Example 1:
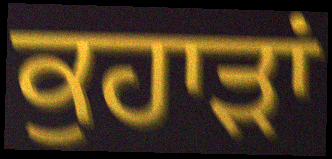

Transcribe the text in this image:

ਕੁਹਾੜਾਂ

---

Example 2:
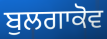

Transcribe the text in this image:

ਬੁਲਗਾਕੋਵ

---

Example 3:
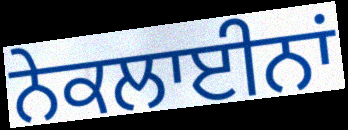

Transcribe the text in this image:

ਨੇਕਲਾਈਨਾਂ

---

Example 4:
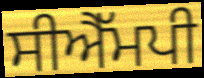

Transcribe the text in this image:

ਸੀਐੱਮਪੀ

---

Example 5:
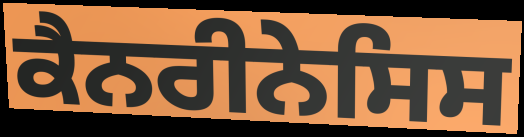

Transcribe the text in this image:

ਕੈਨਰੀਨੇਸਿਸ